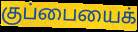
குப்பையைக்